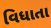
વિધાતા